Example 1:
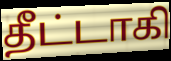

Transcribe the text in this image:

தீட்டாகி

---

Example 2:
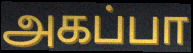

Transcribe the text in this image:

அகப்பா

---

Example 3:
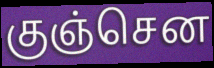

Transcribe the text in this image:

குஞ்சென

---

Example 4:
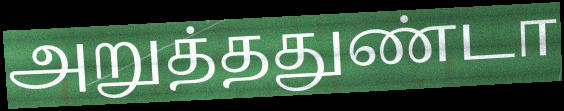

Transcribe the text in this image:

அறுத்ததுண்டா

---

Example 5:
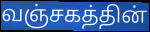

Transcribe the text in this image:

வஞ்சகத்தின்